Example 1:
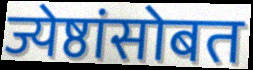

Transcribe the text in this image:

ज्येष्ठांसोबत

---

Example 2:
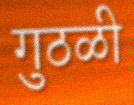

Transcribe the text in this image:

गुठळी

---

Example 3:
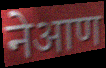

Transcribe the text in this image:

नेआण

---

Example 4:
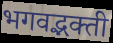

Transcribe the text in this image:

भगवद्भक्ती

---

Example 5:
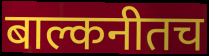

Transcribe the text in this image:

बाल्कनीतच